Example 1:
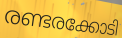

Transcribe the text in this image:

രണ്ടരക്കോടി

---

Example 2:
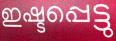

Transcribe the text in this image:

ഇഷ്ടപ്പെട്ടു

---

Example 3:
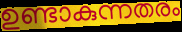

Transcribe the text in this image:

ഉണ്ടാകുന്നതരം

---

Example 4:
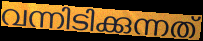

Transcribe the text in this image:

വന്നിടിക്കുന്നത്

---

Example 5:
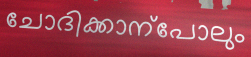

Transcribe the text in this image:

ചോദിക്കാന്പോലും